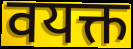
वयक्त